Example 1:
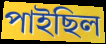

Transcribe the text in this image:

পাইছিল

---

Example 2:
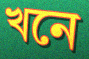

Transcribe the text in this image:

খনে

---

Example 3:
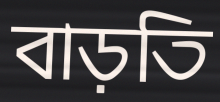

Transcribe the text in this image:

বাড়তি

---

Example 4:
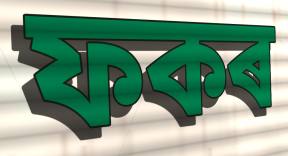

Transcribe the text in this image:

ফকৰ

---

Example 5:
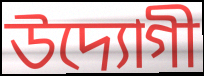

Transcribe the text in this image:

উদ্যোগী